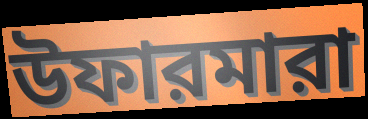
উফারমারা